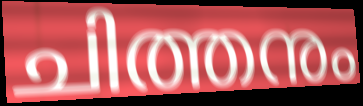
ചിത്തനും